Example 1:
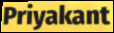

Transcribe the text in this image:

Priyakant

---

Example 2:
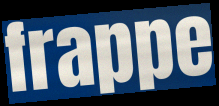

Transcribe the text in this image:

frappe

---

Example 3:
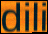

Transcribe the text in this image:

dili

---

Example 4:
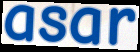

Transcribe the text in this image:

asar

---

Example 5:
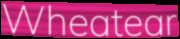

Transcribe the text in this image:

Wheatear